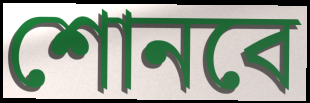
শোনবে